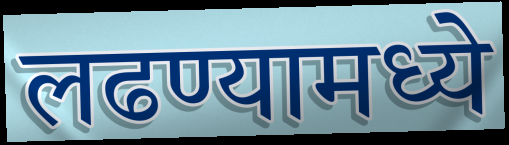
लढण्यामध्ये